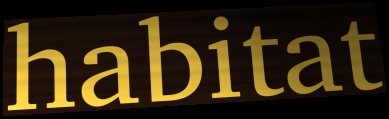
habitat